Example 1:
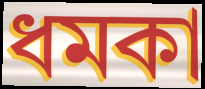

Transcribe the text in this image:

ধমকা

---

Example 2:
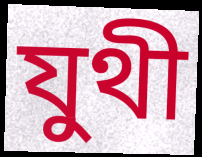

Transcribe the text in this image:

যুথী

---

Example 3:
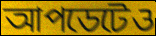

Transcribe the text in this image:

আপডেটেও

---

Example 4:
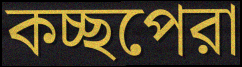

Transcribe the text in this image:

কচ্ছপেরা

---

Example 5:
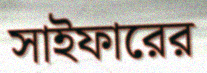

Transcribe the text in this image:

সাইফারের